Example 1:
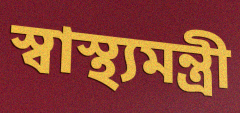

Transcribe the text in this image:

স্বাস্থ্যমন্ত্রী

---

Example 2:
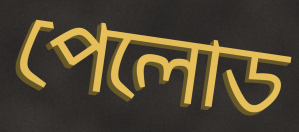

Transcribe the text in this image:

পেলোড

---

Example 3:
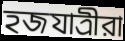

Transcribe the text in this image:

হজযাত্রীরা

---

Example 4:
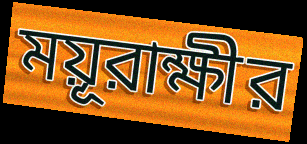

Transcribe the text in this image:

ময়ূরাক্ষীর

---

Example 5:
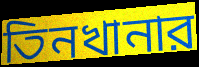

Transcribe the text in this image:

তিনখানার